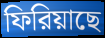
ফিরিয়াছে